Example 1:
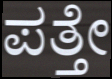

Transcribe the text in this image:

ಪತ್ತೇ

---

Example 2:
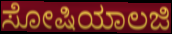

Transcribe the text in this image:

ಸೋಷಿಯಾಲಜಿ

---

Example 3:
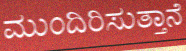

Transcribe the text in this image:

ಮುಂದಿರಿಸುತ್ತಾನೆ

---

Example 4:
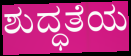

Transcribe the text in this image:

ಶುದ್ಧತೆಯ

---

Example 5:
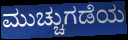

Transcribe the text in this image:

ಮುಚ್ಚುಗಡೆಯ